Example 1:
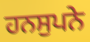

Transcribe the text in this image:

ਹਨਸੁਪਨੇ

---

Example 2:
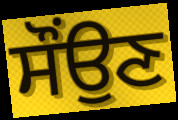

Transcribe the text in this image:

ਸੌਂਉਣ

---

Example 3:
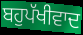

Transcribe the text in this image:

ਬਹੁਪੱਖੀਵਾਦ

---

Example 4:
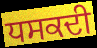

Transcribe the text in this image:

ਧਸਕਦੀ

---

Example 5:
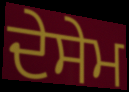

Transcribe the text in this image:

ਦੇਸੇਮ